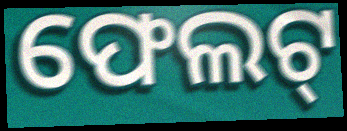
ଫେଲଟ୍